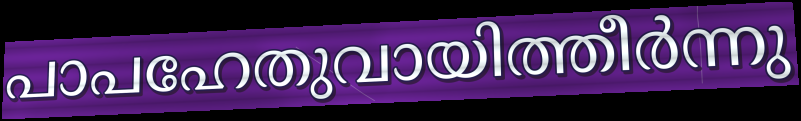
പാപഹേതുവായിത്തീർന്നു